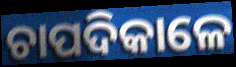
ଚାପଦିକାଳେ